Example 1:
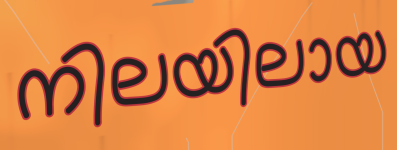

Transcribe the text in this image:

നിലയിലായ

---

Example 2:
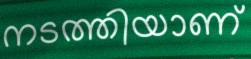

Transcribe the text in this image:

നടത്തിയാണ്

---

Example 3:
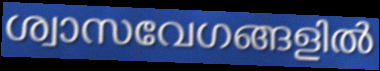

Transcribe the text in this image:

ശ്വാസവേഗങ്ങളിൽ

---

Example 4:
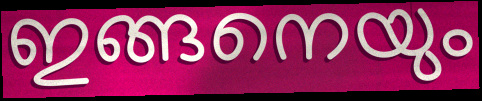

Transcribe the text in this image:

ഇങ്ങനെയും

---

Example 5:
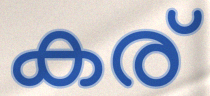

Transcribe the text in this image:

കര്